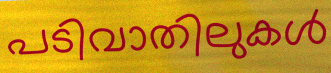
പടിവാതിലുകൾ